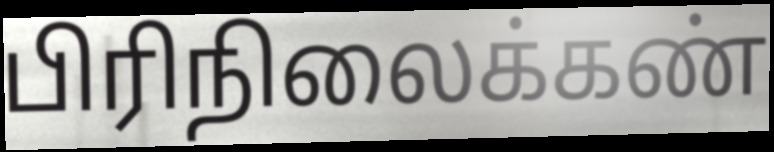
பிரிநிலைக்கண்